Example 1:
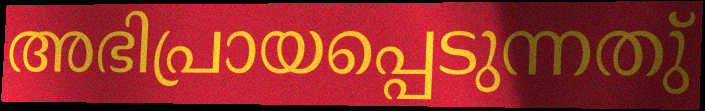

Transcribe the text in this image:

അഭിപ്രായപ്പെടുന്നതു്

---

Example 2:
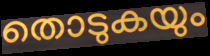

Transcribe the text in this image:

തൊടുകയും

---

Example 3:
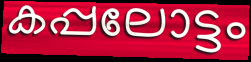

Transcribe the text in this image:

കപ്പലോട്ടം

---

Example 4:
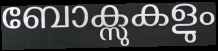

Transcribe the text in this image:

ബോക്സുകളും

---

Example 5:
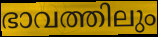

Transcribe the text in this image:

ഭാവത്തിലും